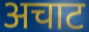
अचाट